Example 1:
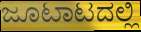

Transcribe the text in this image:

ಜೂಟಾಟದಲ್ಲಿ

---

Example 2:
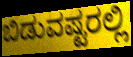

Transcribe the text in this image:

ಬಿಡುವಷ್ಟರಲ್ಲಿ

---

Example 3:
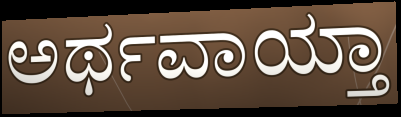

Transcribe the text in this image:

ಅರ್ಥವಾಯ್ತಾ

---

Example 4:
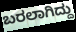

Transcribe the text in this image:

ಬರಲಾಗಿದ್ದು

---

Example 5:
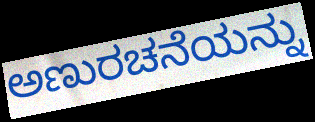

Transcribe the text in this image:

ಅಣುರಚನೆಯನ್ನು